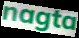
nagta